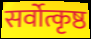
सर्वोत्कृष्ठ